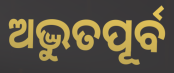
ଅଦ୍ଭୁତପୂର୍ବ